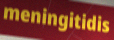
meningitidis